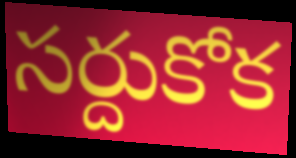
సర్దుకోక